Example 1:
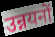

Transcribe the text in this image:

उन्नयनों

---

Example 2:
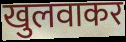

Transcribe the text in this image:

खुलवाकर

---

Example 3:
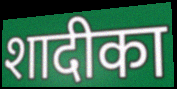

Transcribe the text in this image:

शादीका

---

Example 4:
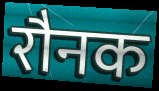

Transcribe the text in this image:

रौनक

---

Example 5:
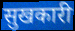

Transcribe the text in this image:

सुखकारी